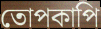
তোপকাপি